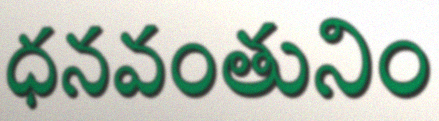
ధనవంతునిం